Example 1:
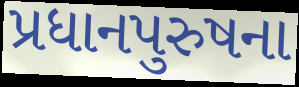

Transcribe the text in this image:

પ્રધાનપુરુષના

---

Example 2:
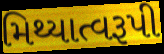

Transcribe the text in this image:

મિથ્યાત્વરૂપી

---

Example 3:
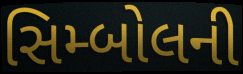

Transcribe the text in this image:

સિમ્બોલની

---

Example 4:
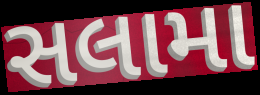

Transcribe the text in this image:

સલામા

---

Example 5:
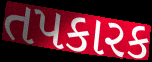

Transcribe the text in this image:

તપકારક